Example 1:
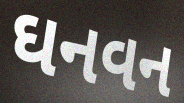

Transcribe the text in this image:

ઘનવન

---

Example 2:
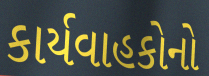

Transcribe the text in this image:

કાર્યવાહકોનો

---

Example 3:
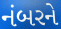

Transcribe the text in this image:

નંબરને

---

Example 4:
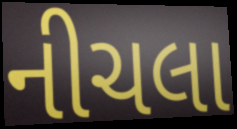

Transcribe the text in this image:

નીચલા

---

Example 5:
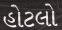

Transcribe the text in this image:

હોટલો